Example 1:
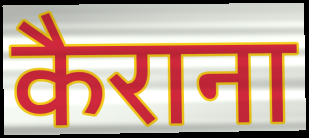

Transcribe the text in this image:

कैराना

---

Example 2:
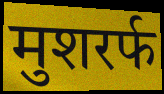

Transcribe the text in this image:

मुशरर्फ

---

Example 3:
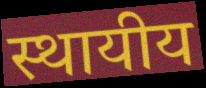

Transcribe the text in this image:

स्थायीय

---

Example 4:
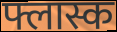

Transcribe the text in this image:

फ्लास्क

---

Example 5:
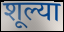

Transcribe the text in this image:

शूल्या